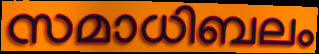
സമാധിബലം